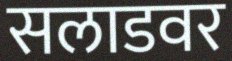
सलाडवर